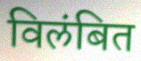
विलंबित